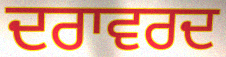
ਦਰਾਵਰਦ